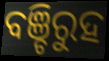
ବଞ୍ଚିରୁହ